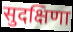
सुदक्षिणा